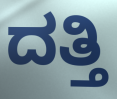
ದತ್ತಿ